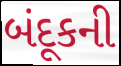
બંદૂકની